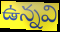
ఉన్నవి